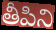
తీపిని